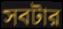
সবটার